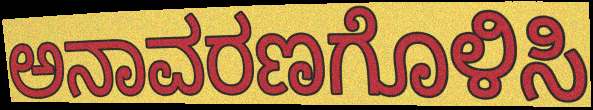
ಅನಾವರಣಗೊಳಿಸಿ